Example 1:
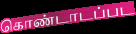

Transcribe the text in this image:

கொண்டாடப்பட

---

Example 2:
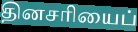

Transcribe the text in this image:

தினசரியைப்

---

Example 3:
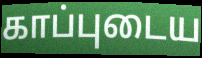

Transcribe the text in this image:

காப்புடைய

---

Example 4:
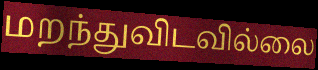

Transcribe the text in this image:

மறந்துவிடவில்லை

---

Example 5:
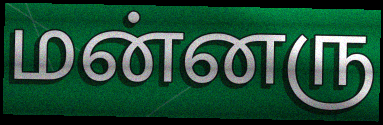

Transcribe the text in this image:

மன்னரு